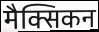
मैक्सिकन